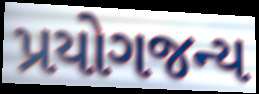
પ્રયોગજન્ય